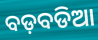
ବଡ଼ବଡିଆ